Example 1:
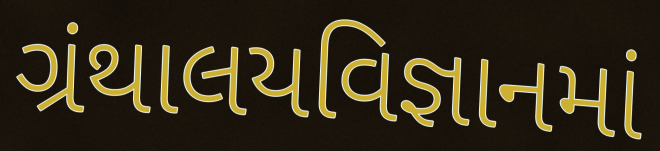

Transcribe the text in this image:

ગ્રંથાલયવિજ્ઞાનમાં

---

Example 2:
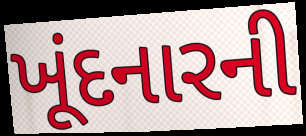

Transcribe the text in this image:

ખૂંદનારની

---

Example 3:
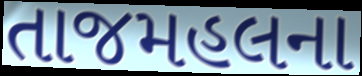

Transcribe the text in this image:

તાજમહલના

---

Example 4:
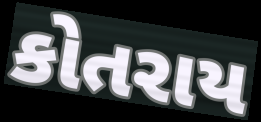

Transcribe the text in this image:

કોતરાય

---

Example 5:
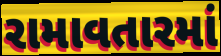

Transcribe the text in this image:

રામાવતારમાં